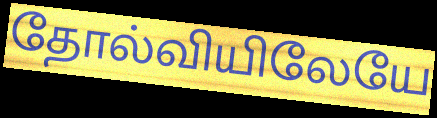
தோல்வியிலேயே